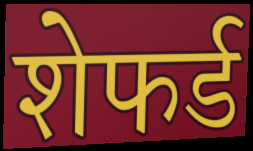
शेफर्ड